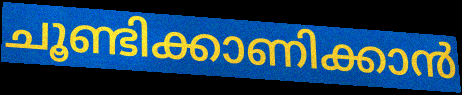
ചൂണ്ടിക്കാണിക്കാൻ